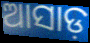
ଆସାଡ଼